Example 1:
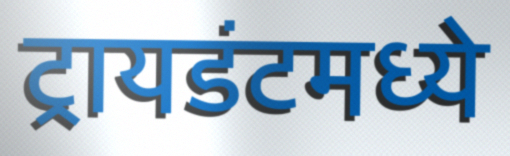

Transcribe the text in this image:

ट्रायडंटमध्ये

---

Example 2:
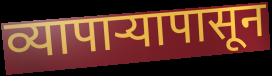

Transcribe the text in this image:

व्यापाऱ्यापासून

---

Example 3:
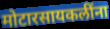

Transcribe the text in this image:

मोटारसायकलींना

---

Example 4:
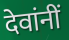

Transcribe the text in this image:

देवांनीं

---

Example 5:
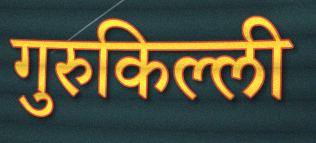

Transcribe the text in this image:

गुरुकिल्ली